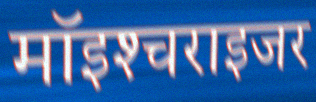
मॉइश्‍चराइजर